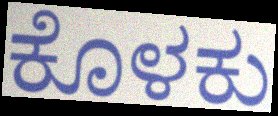
ಕೊಳಕು